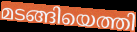
മടങ്ങിയെത്തി